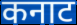
कनाट